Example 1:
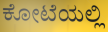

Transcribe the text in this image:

ಕೋಟೆಯಲ್ಲಿ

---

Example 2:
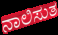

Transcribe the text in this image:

ನಾಲಿಸುತ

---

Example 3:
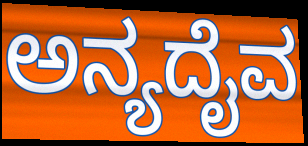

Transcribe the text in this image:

ಅನ್ಯದೈವ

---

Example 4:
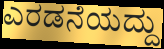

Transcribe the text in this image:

ಎರಡನೆಯದ್ದು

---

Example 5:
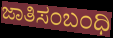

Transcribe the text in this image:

ಜಾತಿಸಂಬಂಧಿ